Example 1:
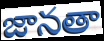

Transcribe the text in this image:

జానతా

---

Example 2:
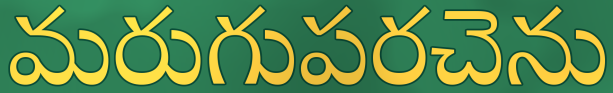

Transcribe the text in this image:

మరుగుపరచెను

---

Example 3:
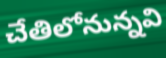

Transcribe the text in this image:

చేతిలోనున్నవి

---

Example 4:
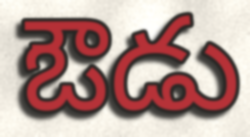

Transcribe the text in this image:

ఔడు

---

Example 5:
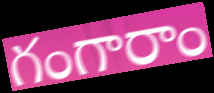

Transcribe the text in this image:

గంగారాం